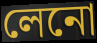
লেনো